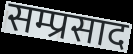
सम्प्रसाद